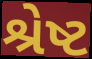
શ્રેષ્ટ